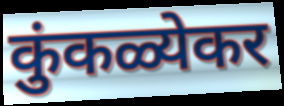
कुंकळ्येकर